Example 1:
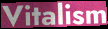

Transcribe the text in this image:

Vitalism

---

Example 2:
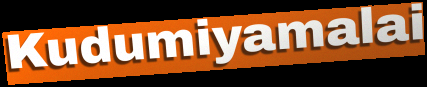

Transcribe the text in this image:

Kudumiyamalai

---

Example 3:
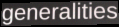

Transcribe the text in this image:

generalities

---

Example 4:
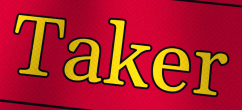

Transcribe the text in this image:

Taker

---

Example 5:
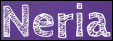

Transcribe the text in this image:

Neria